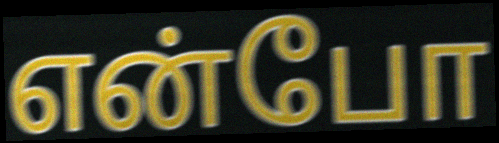
என்போ